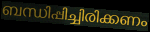
ബന്ധിപ്പിച്ചിരിക്കണം